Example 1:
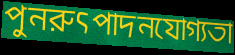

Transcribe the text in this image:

পুনরুৎপাদনযোগ্যতা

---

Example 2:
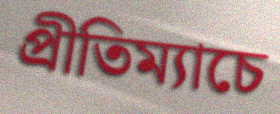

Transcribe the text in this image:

প্রীতিম্যাচে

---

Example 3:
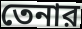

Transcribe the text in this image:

তেনার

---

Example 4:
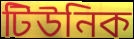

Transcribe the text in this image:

টিউনিক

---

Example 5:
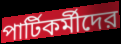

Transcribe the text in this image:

পার্টিকর্মীদের